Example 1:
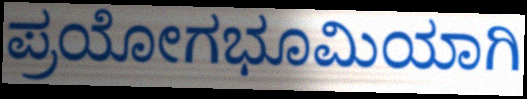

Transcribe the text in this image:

ಪ್ರಯೋಗಭೂಮಿಯಾಗಿ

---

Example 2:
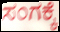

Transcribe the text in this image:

ಸಂಗಕ್ಕೆ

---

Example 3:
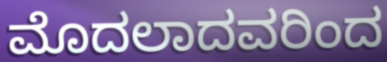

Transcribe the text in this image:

ಮೊದಲಾದವರಿಂದ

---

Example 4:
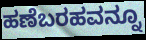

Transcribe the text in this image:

ಹಣೆಬರಹವನ್ನೂ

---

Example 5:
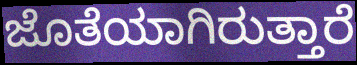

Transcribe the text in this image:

ಜೊತೆಯಾಗಿರುತ್ತಾರೆ